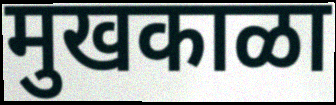
मुखकाळा